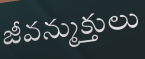
జీవన్ముక్తులు